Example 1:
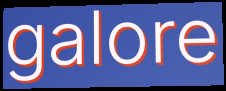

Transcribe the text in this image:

galore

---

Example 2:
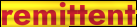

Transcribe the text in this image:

remittent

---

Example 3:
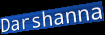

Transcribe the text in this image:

Darshanna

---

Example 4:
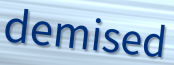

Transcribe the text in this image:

demised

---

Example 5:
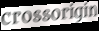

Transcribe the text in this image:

crossorigin